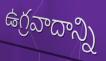
ఉగ్రవాదాన్ని